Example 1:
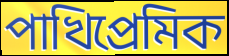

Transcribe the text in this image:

পাখিপ্রেমিক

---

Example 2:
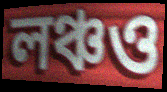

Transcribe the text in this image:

লঞ্চও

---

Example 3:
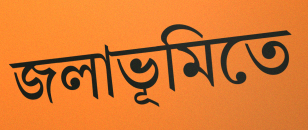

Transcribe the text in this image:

জলাভূমিতে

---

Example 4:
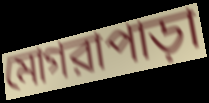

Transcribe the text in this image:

মোগরাপাড়া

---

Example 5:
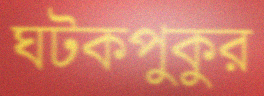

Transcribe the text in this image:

ঘটকপুকুর